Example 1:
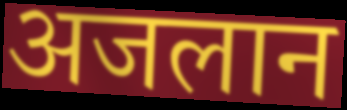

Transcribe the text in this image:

अजलान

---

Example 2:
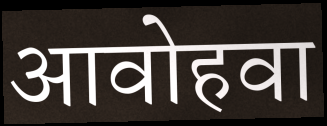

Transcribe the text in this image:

आवोहवा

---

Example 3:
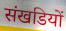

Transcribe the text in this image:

संखडियों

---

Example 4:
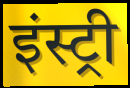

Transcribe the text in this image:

इंस्ट्री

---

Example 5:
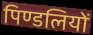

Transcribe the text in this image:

पिण्डलियों